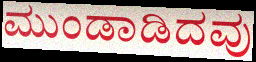
ಮುಂಡಾಡಿದವು